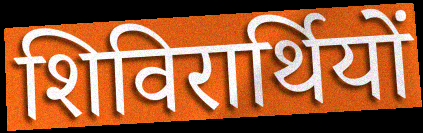
शिविरार्थियों